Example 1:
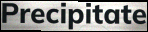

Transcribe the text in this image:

Precipitate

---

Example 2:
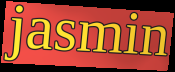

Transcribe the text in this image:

jasmin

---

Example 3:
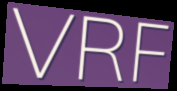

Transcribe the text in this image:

VRF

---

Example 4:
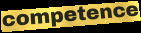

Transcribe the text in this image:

competence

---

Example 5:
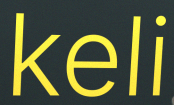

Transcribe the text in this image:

keli